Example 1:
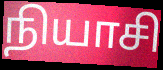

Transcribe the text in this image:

நியாசி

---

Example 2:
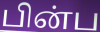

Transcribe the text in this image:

பின்ப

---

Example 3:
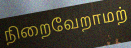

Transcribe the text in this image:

நிறைவேறாமற்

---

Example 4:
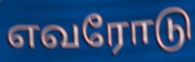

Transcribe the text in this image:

எவரோடு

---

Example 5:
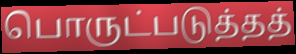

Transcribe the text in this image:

பொருட்படுத்தத்